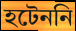
হটেননি